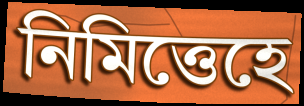
নিমিত্তেহে